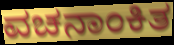
ವಚನಾಂಕಿತ